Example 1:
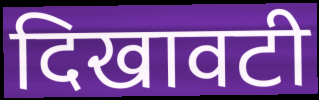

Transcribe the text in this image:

दिखावटी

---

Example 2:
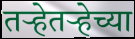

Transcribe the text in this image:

तऱ्हेतऱ्हेच्या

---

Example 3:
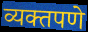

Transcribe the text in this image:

व्यक्तपणे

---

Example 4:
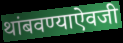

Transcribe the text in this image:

थांबवण्याऐवजी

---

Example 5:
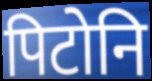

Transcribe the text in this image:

पिटोनि